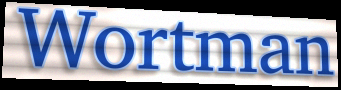
Wortman